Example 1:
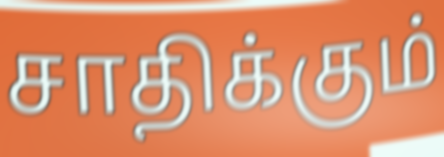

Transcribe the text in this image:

சாதிக்கும்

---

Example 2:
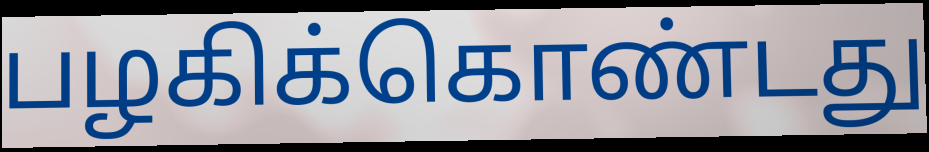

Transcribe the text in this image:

பழகிக்கொண்டது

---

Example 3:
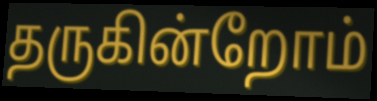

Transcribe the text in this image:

தருகின்றோம்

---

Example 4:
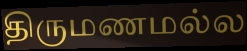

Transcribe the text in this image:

திருமணமல்ல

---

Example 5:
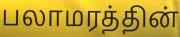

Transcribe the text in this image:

பலாமரத்தின்